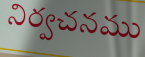
నిర్వచనము